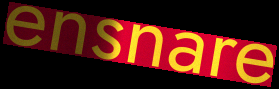
ensnare